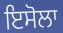
ਇਸੋਲਾ